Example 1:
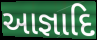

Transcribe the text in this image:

આજ્ઞાદિ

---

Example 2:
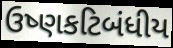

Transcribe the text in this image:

ઉષ્ણકટિબંધીય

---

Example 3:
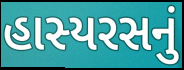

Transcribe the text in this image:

હાસ્યરસનું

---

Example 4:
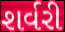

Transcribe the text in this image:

શર્વરી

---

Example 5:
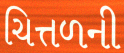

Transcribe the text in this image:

ચિત્તળની